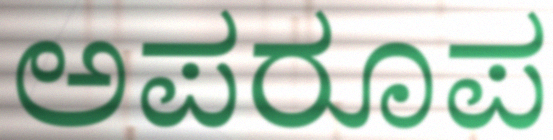
ಅಪರೂಪ